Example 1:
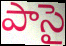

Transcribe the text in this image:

పాసై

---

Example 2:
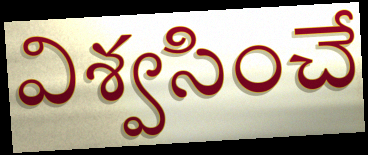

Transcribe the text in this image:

విశ్వసించే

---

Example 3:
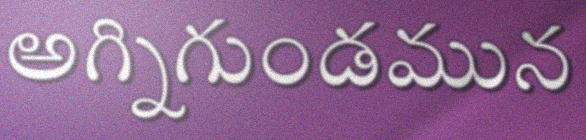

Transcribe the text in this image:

అగ్నిగుండమున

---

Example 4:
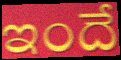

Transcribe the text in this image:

ఇందే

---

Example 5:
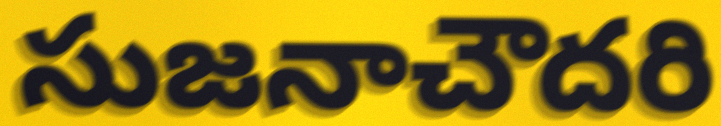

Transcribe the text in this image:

సుజనాచౌదరి